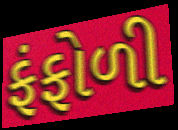
ફંફોળી